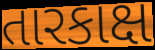
તારકાક્ષ